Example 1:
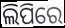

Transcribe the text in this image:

ଲିପିରେ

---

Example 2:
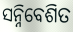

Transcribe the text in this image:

ସନ୍ନିବେଶିତ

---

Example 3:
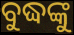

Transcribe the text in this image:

ବୁଦ୍ଧଙ୍କୁ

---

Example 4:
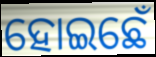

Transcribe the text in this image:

ହୋଇଛେଁ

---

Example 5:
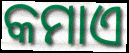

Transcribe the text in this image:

କମାଏ